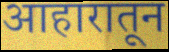
आहारातून